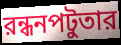
রন্ধনপটুতার